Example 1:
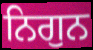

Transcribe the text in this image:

ਨਿਗੁਨ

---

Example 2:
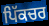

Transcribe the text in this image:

ਪਿੱਕਚਰ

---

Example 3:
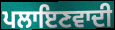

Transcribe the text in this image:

ਪਲਾਇਣਵਾਦੀ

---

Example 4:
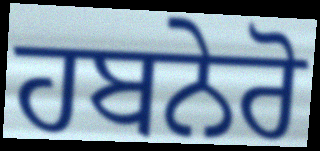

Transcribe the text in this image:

ਹਬਨੇਰੋ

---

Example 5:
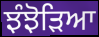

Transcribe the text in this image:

ਝੰਝੋੜਿਆ